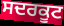
ਸਦਰਕੂਟ